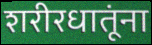
शरीरधातूंना